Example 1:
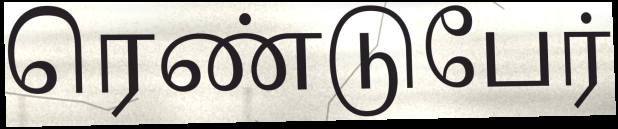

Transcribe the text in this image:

ரெண்டுபேர்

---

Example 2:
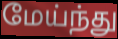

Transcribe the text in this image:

மேய்ந்து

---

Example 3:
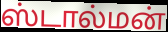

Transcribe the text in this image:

ஸ்டால்மன்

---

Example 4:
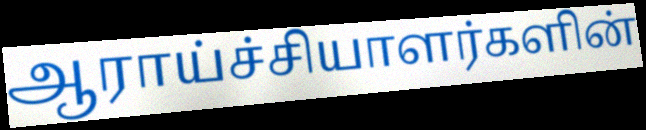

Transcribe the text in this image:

ஆராய்ச்சியாளர்களின்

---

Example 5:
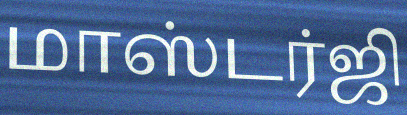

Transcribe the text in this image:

மாஸ்டர்ஜி